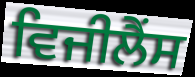
ਵਿਜੀਲੈਂਸ